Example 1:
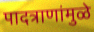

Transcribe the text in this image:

पादत्राणांमुळे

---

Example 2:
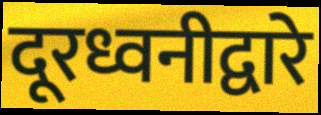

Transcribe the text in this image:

दूरध्वनीद्वारे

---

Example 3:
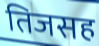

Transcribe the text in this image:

तिजसह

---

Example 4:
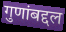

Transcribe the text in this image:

गुणांबद्दल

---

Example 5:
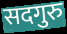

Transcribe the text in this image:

सदगुरु